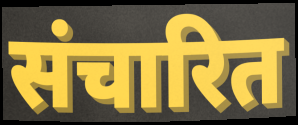
संचारित